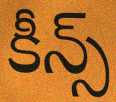
కీన్స్